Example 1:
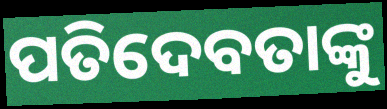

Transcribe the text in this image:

ପତିଦେବତାଙ୍କୁ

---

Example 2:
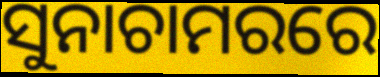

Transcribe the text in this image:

ସୁନାଚାମରରେ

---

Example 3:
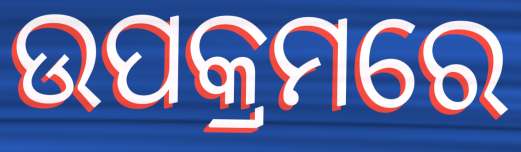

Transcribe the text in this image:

ଉପକ୍ରମରେ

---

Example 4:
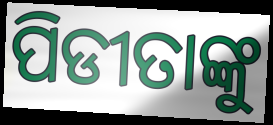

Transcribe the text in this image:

ପିଡୀତାଙ୍କୁ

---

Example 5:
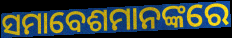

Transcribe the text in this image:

ସମାବେଶମାନଙ୍କରେ